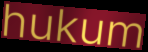
hukum